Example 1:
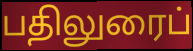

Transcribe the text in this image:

பதிலுரைப்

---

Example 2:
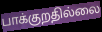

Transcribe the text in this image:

பாக்குறதில்லை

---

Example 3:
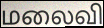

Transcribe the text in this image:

மலைவி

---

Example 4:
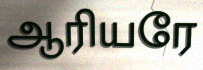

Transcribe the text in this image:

ஆரியரே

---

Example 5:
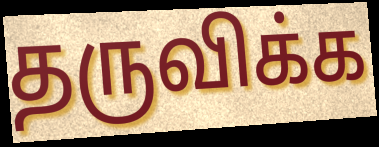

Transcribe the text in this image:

தருவிக்க